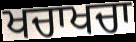
ਖਚਾਖਚਾ